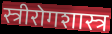
स्त्रीरोगशास्त्र